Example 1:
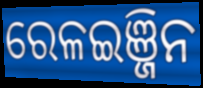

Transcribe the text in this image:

ରେଳଇଞ୍ଜିନ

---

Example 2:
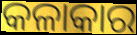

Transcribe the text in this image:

କଳାକାର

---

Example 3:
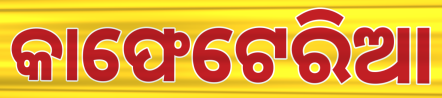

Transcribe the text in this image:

କାଫେଟେରିଆ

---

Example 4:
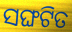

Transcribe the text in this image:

ସଙ୍ଘଟିତ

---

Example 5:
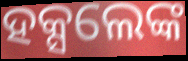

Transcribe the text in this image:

ହକ୍ସଲେଙ୍କ